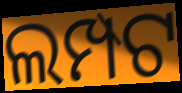
ଲମ୍ପଟ